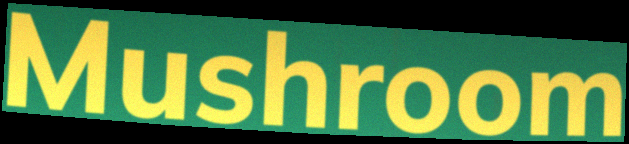
Mushroom